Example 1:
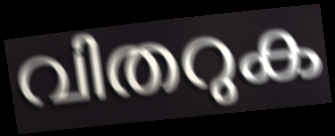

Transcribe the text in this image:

വിതറുക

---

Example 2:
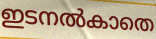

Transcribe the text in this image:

ഇടനൽകാതെ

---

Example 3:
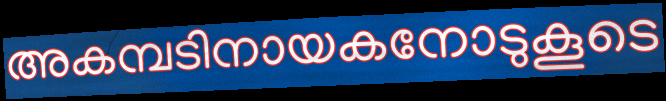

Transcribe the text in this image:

അകമ്പടിനായകനോടുകൂടെ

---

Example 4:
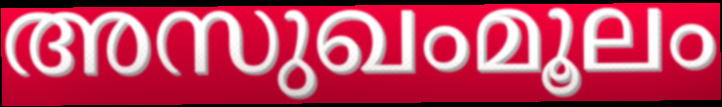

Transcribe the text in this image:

അസുഖംമൂലം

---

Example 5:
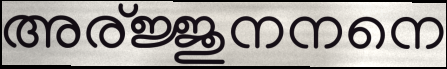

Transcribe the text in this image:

അര്ജ്ജുനനനെ